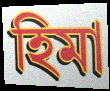
হিমা